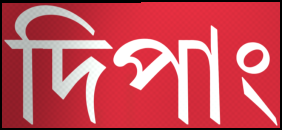
দিপাং